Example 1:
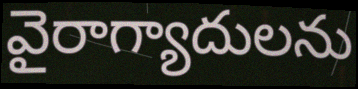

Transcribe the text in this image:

వైరాగ్యాదులను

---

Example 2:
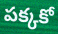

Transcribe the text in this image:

పక్కకో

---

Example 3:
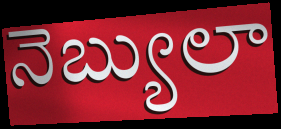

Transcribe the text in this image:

నెబ్యులా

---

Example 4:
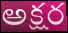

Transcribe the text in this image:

అక్షర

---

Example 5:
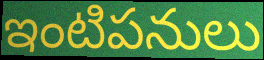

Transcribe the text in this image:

ఇంటిపనులు